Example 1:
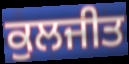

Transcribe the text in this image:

ਕੁਲਜੀਤ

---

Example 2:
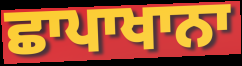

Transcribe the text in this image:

ਛਾਪਾਖਾਨਾ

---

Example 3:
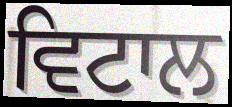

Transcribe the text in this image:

ਵਿਟਾਲ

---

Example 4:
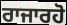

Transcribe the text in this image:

ਰਾਜਾਰਹੋ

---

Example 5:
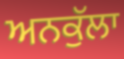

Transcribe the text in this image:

ਅਨਕੁੱਲਾ